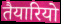
तैयारियो